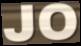
JO